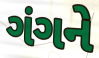
ગંગને